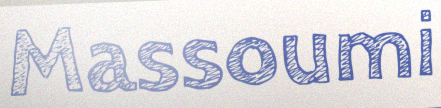
Massoumi